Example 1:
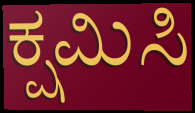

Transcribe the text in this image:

ಕ್ಷಮಿಸಿ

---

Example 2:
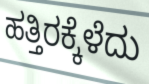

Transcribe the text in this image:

ಹತ್ತಿರಕ್ಕೆಳೆದು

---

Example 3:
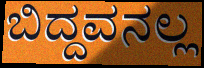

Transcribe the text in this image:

ಬಿದ್ದವನಲ್ಲ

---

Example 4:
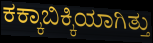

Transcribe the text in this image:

ಕಕ್ಕಾಬಿಕ್ಕಿಯಾಗಿತ್ತು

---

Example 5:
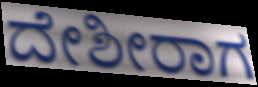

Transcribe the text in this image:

ದೇಶೀರಾಗ